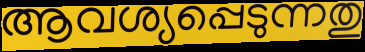
ആവശ്യപ്പെടുന്നതു